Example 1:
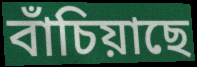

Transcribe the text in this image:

বাঁচিয়াছে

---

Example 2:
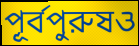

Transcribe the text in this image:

পূর্বপুরুষও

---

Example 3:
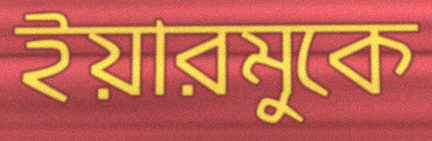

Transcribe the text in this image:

ইয়ারমুকে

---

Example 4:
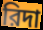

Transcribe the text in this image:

রিদা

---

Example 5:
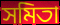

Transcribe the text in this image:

সমিতা